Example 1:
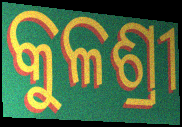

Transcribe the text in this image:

କୁଳଶ୍ରୀ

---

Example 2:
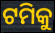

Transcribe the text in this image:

ଟମିକୁ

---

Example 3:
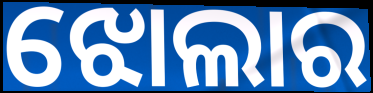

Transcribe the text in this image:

ଝୋଲାର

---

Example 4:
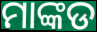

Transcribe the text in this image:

ମାଙ୍କଡ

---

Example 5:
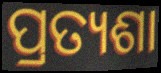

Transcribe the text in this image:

ପ୍ରତ୍ୟଶା